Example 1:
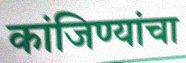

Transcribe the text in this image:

कांजिण्यांचा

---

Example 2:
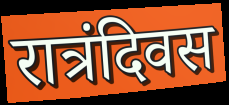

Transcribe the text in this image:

रात्रंदिवस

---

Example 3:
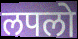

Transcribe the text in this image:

लपलो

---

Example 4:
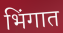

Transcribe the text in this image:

भिंगात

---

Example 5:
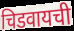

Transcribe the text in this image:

चिडवायची